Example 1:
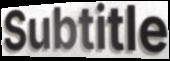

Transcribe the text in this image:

Subtitle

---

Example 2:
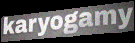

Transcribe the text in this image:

karyogamy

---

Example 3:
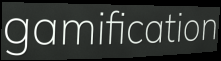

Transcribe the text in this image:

gamification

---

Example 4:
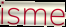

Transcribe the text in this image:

isme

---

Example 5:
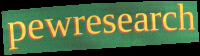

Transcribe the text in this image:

pewresearch